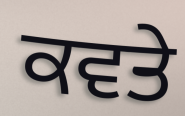
ਕਵਤੇ